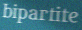
bipartite